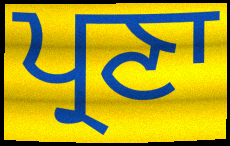
ਪ੍ਰਣਾ